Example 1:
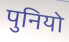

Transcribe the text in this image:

पुनियो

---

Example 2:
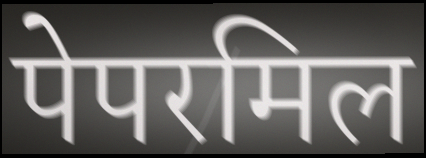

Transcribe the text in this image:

पेपरमिल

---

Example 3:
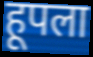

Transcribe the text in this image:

हूपला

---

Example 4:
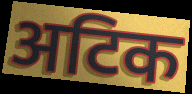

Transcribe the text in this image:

अटिक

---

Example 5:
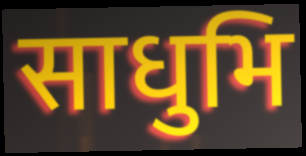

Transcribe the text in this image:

साधुभि